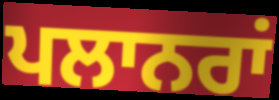
ਪਲਾਨਰਾਂ